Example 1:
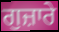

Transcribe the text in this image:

ਗੁਜ਼ਾਰੇ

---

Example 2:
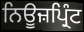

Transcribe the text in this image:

ਨਿਊਜ਼ਪ੍ਰਿੰਟ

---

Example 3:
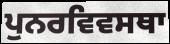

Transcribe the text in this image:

ਪੁਨਰਵਿਵਸਥਾ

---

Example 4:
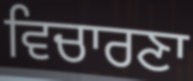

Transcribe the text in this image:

ਵਿਚਾਰਣਾ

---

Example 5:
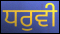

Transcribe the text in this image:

ਧਰੁਵੀ